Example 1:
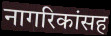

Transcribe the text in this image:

नागरिकांसह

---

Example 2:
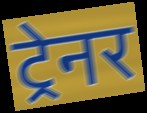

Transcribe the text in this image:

ट्रेनर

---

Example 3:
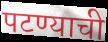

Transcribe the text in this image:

पटण्याची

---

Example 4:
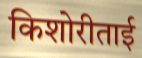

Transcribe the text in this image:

किशोरीताई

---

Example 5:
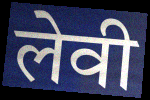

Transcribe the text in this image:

लेवी